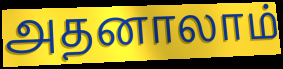
அதனாலாம்